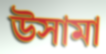
উসামা